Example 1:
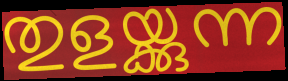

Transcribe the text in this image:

തുളയ്ക്കുന്ന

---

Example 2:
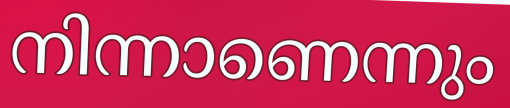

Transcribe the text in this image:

നിന്നാണെന്നും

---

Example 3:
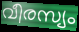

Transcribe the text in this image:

വീരസ്യം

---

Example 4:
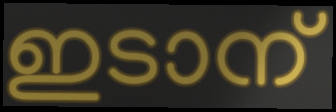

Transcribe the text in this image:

ഇടാന്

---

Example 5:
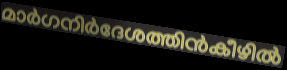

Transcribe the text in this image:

മാർഗനിർദേശത്തിൻകീഴിൽ